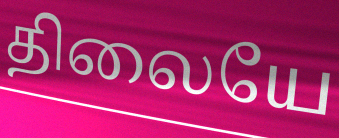
திலையே